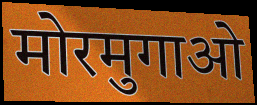
मोरमुगाओ